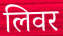
लिवर